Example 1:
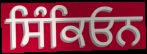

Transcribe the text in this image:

ਸਿੰਕਿਓਨ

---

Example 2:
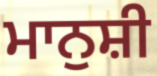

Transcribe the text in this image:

ਮਾਨੁਸ਼ੀ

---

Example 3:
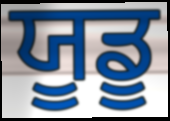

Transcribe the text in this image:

ਯੂਡੂ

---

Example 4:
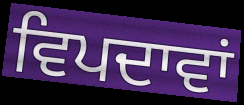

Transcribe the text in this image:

ਵਿਪਦਾਵਾਂ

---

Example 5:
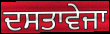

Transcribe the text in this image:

ਦਸਤਾਵੇਜਾ